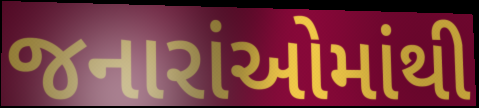
જનારાંઓમાંથી